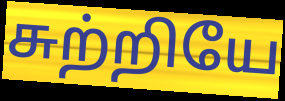
சுற்றியே